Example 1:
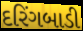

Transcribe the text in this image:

દરિંગબાડી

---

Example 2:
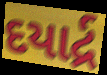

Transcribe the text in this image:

દયાર્દ્ર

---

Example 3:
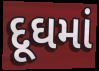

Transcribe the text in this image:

દૂઘમાં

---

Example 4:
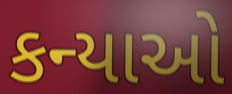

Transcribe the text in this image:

કન્યાઓ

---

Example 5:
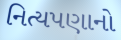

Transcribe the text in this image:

નિત્યપણાનો